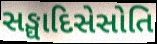
સઙ્ઘાદિસેસોતિ